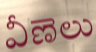
వీణెలు